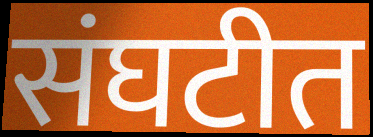
संघटीत